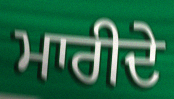
ਮਾਰੀਦੇ